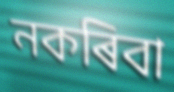
নকৰিবা